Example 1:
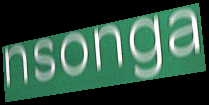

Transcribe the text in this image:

nsonga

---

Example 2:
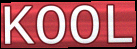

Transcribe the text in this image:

KOOL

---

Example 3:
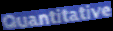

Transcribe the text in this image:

Quantitative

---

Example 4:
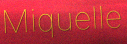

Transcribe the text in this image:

Miquelle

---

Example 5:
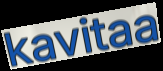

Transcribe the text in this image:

kavitaa